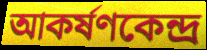
আকর্ষণকেন্দ্র